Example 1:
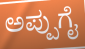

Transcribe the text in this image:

ಅಪ್ಪುಗೈ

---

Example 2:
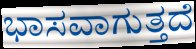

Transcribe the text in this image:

ಭಾಸವಾಗುತ್ತದೆ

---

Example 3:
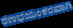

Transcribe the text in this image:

ರಣಭಯಂಕರವಾಗಿ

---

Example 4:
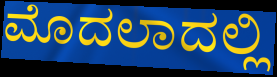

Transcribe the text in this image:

ಮೊದಲಾದಲ್ಲಿ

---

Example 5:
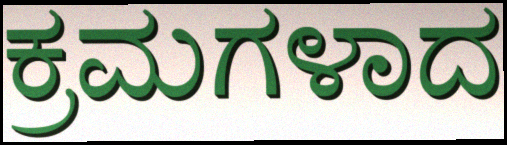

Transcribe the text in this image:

ಕ್ರಮಗಳಾದ